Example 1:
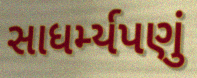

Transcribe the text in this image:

સાધર્મ્યપણું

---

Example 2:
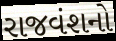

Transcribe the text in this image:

રાજવંશનો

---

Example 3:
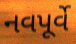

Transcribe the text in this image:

નવપૂર્વે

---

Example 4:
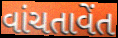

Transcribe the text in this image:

વાંચતાવેંત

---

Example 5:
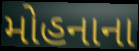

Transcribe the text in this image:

મોહનાના